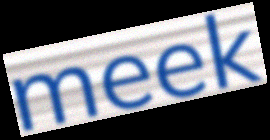
meek